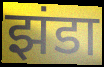
झंडा